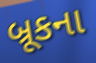
બ્રૂકના